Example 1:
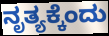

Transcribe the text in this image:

ನೃತ್ಯಕ್ಕೆಂದು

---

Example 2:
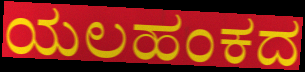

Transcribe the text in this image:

ಯಲಹಂಕದ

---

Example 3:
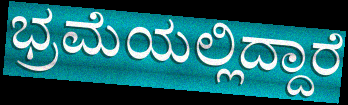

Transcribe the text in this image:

ಭ್ರಮೆಯಲ್ಲಿದ್ದಾರೆ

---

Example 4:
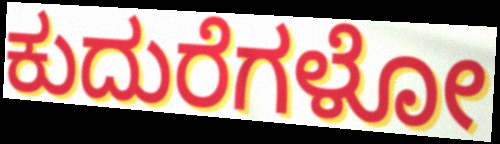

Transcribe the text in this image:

ಕುದುರೆಗಳೋ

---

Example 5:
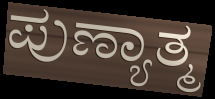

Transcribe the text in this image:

ಪುಣ್ಯಾತ್ಮ